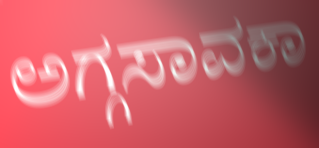
ಅಗ್ಗಸಾವಕಾ